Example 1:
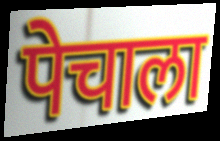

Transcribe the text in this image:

पेचाला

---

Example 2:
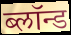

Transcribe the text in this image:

ब्लॉन्ड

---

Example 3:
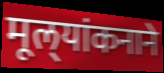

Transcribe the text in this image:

मूल्यांकनाने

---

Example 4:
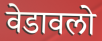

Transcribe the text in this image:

वेडावलो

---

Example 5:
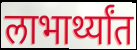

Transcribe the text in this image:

लाभार्थ्यांत